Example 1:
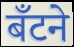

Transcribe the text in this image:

बँटने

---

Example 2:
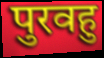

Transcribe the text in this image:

पुरवहु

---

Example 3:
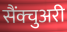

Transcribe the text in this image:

सैंक्चुअरी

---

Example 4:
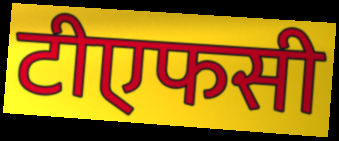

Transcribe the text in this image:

टीएफसी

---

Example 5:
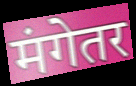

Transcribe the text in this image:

मंगेतर